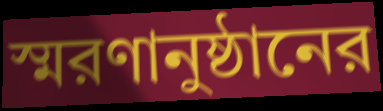
স্মরণানুষ্ঠানের